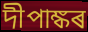
দীপাঙ্কৰ